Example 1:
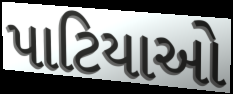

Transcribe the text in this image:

પાટિયાઓ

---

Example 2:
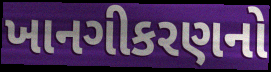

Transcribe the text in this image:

ખાનગીકરણનો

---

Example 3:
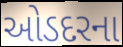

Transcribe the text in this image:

ઓડદરના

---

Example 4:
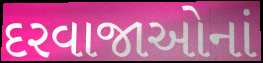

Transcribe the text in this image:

દરવાજાઓનાં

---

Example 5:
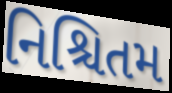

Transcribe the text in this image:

નિશ્ચિતમ